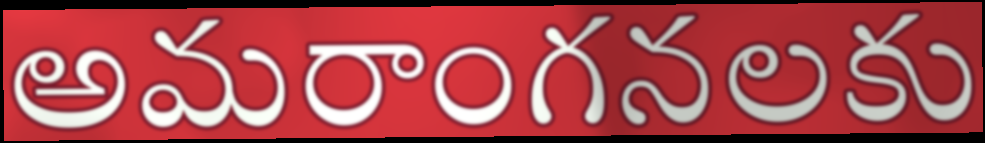
అమరాంగనలకు